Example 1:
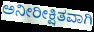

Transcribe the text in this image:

ಅನೀರೀಕ್ಷಿತವಾಗಿ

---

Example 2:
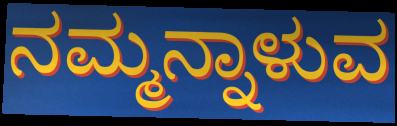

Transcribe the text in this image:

ನಮ್ಮನ್ನಾಳುವ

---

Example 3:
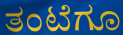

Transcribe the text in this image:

ತಂಟೆಗೂ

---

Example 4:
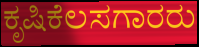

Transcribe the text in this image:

ಕೃಷಿಕೆಲಸಗಾರರು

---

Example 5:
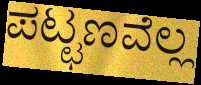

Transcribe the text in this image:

ಪಟ್ಟಣವೆಲ್ಲ